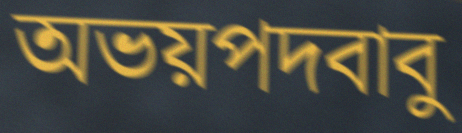
অভয়পদবাবু